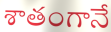
శాతంగానే